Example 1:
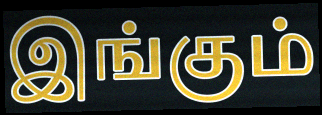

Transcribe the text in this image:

இங்கும்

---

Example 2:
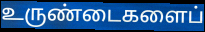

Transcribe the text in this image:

உருண்டைகளைப்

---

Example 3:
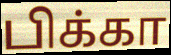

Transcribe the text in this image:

பிக்கா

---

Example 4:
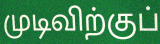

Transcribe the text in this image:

முடிவிற்குப்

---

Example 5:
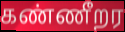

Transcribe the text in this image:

கண்ணீறர